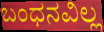
ಬಂಧನವಿಲ್ಲ